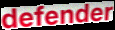
defender